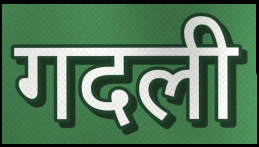
गदली